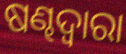
ଷଣ୍ଢଦ୍ୱାରା